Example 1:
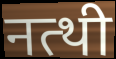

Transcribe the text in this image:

नत्‍थी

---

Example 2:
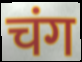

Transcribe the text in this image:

चंग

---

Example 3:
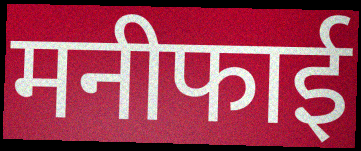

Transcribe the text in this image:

मनीफाई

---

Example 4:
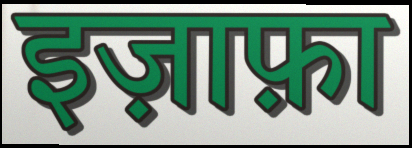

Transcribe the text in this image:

इज़ाफ़ा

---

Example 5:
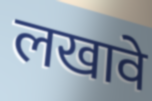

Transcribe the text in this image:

लखावे